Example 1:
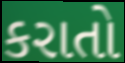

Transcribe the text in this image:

કરાતો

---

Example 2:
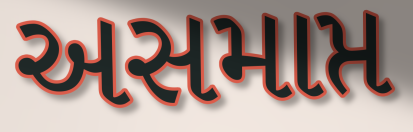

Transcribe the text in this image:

અસમાપ્ત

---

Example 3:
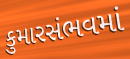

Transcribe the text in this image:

કુમારસંભવમાં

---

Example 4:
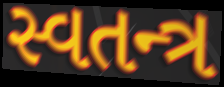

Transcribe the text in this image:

સ્વતન્ત્ર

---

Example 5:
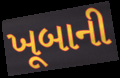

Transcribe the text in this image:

ખૂબાની